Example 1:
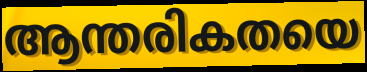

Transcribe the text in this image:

ആന്തരികതയെ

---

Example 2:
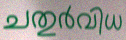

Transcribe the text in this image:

ചതുർവിധ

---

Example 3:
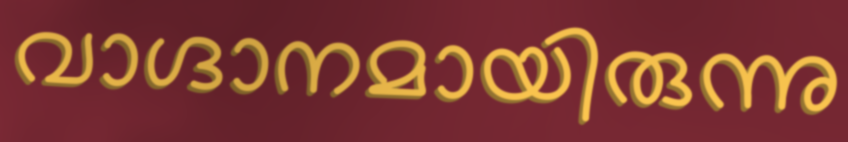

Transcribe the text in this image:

വാഗ്ദാനമായിരുന്നു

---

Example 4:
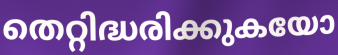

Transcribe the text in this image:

തെറ്റിദ്ധരിക്കുകയോ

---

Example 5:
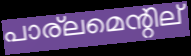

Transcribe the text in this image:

പാര്ലമെന്റില്